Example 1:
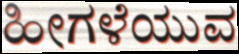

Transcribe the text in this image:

ಹೀಗಳೆಯುವ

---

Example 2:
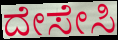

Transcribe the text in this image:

ದೇಸೇಸಿ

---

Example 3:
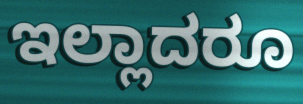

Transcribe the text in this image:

ಇಲ್ಲಾದರೂ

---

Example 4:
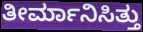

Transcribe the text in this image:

ತೀರ್ಮಾನಿಸಿತ್ತು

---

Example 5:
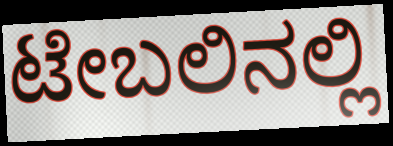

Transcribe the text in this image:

ಟೇಬಲಿನಲ್ಲಿ